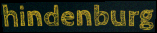
hindenburg